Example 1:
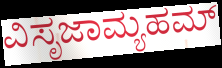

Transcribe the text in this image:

ವಿಸೃಜಾಮ್ಯಹಮ್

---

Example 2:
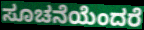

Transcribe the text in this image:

ಸೂಚನೆಯೆಂದರೆ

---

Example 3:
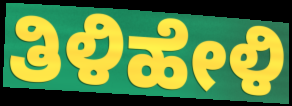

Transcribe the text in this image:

ತಿಳಿಹೇಳಿ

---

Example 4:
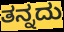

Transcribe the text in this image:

ತನ್ನದು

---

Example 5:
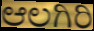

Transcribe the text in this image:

ಆಲಗಿರಿ